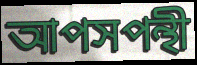
আপসপন্থী